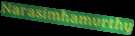
Narasimhamurthy